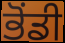
ਭੋਂਡੀ